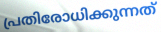
പ്രതിരോധിക്കുന്നത്